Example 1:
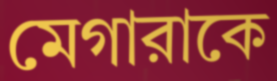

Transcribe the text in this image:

মেগারাকে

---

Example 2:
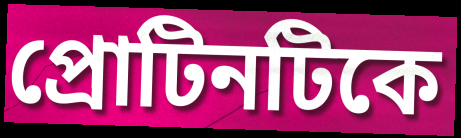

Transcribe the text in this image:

প্রোটিনটিকে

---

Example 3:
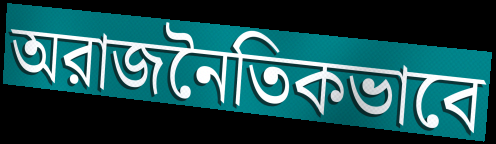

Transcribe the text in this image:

অরাজনৈতিকভাবে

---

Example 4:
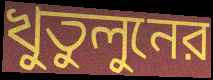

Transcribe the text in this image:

খুতুলুনের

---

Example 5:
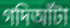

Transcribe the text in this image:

গদিআঁটা